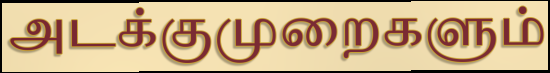
அடக்குமுறைகளும்